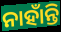
ନାହାଁନ୍ତି